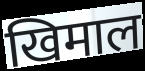
खिमाल